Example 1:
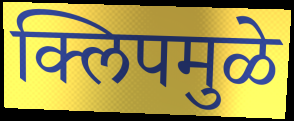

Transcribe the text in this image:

क्लिपमुळे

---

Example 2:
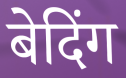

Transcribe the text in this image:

बेदिंग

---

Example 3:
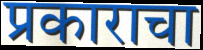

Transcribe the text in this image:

प्रकाराचा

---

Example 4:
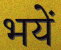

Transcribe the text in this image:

भयें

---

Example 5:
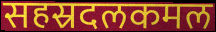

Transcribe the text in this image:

सहस्रदलकमल